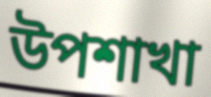
উপশাখা